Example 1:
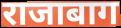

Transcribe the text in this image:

राजाबाग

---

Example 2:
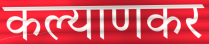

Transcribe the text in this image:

कल्याणकर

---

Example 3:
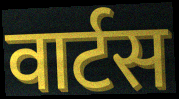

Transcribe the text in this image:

वार्टस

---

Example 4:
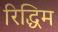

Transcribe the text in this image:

रिद्धिम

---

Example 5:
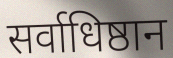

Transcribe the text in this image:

सर्वाधिष्ठान